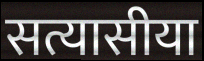
सत्यासीया